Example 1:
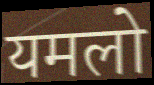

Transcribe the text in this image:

यमलो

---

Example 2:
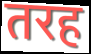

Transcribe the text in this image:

तरह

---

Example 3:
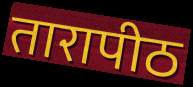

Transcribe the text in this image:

तारापीठ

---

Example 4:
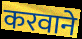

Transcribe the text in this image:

करवाने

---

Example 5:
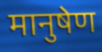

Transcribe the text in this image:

मानुषेण